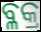
ବ୍ଳକ୍ର